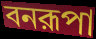
বনরূপা